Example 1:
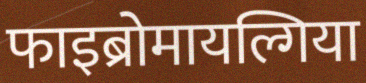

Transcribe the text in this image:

फाइब्रोमायल्गिया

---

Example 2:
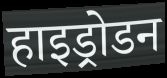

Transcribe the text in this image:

हाइड्रोडन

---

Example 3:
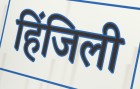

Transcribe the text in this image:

हिंजिली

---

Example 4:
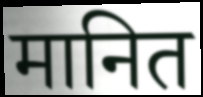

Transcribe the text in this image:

मानित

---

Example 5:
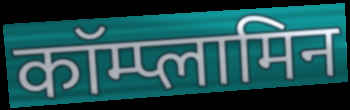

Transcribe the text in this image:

कॉम्प्लामिन